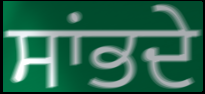
ਸਾਂਭਦੇ